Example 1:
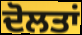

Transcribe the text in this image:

ਦੋਲਤਾਂ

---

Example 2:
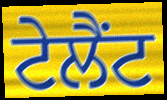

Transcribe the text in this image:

ਟੇਲੈਂਟ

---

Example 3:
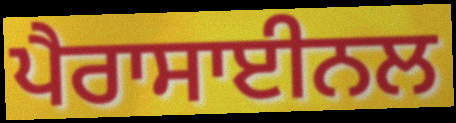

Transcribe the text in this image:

ਪੈਰਾਸਾਈਨਲ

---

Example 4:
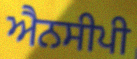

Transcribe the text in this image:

ਐਨਸੀਪੀ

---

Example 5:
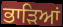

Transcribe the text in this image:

ਭਾੜਿਆਂ